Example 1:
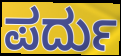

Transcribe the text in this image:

ಪರ್ದು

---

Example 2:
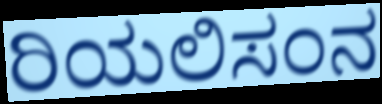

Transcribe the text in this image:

ರಿಯಲಿಸಂನ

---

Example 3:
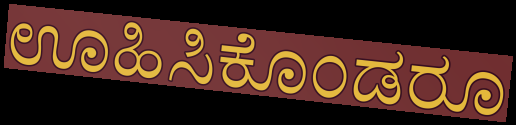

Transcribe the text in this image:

ಊಹಿಸಿಕೊಂಡರೂ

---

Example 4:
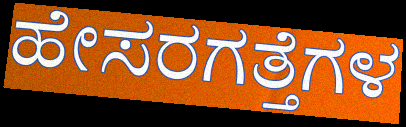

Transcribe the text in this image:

ಹೇಸರಗತ್ತೆಗಳ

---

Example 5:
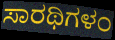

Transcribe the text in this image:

ಸಾರಥಿಗಳಂ